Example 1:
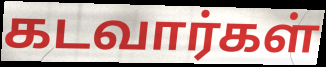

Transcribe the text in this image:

கடவார்கள்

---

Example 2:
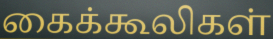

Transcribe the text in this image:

கைக்கூலிகள்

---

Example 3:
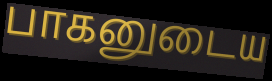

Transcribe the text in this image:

பாகனுடைய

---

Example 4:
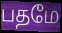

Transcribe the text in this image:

பதமே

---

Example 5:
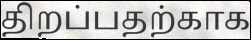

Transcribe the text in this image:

திறப்பதற்காக